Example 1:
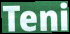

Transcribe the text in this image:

Teni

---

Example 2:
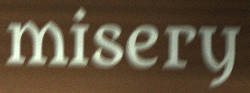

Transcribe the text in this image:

misery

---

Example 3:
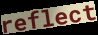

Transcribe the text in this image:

reflect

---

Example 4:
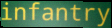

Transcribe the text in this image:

infantry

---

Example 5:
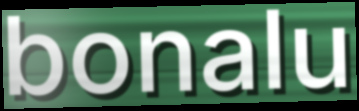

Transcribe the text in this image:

bonalu